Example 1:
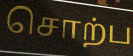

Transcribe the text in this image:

சொற்ப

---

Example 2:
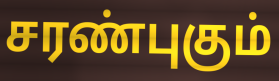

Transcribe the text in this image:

சரண்புகும்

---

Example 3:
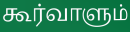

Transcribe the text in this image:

கூர்வாளும்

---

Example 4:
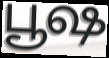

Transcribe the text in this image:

பூஷ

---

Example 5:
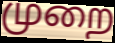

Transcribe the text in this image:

முறை